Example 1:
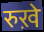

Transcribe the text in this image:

रुख़े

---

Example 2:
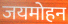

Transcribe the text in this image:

जयमोहन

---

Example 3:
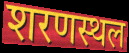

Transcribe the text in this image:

शरणस्थल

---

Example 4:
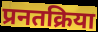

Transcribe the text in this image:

प्रनतक्रिया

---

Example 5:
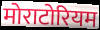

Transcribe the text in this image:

मोराटोरियम